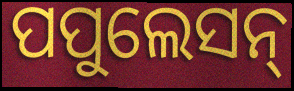
ପପୁଲେସନ୍